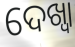
ଦେଖ୍ବା